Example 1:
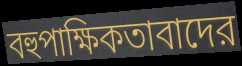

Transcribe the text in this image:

বহুপাক্ষিকতাবাদের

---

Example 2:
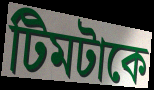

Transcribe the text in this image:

টিমটাকে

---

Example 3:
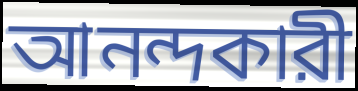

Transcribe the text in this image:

আনন্দকারী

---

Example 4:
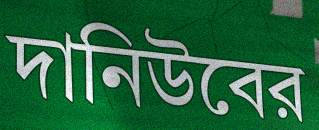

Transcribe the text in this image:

দানিউবের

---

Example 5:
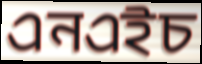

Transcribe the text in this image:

এনএইচ